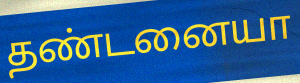
தண்டனையா